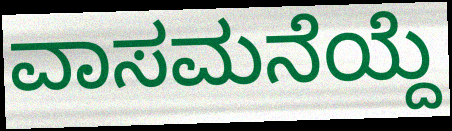
ವಾಸಮನೆಯ್ದೆ